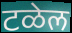
टळेल